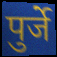
पुर्जे